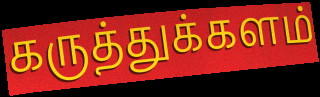
கருத்துக்களம்